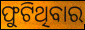
ଫୁଟିଥିବାର